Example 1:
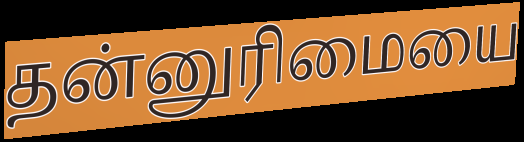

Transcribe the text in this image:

தன்னுரிமையை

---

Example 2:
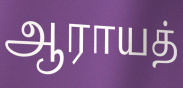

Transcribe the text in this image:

ஆராயத்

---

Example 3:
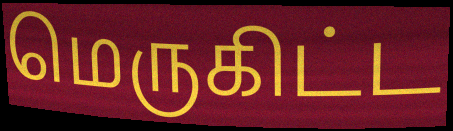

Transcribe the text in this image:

மெருகிட்ட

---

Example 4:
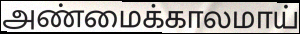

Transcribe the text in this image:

அண்மைக்காலமாய்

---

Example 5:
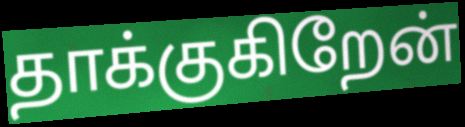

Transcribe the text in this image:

தாக்குகிறேன்